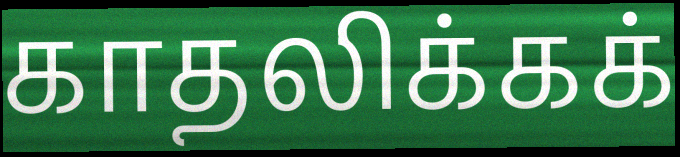
காதலிக்கக்